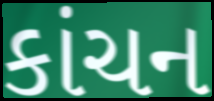
કાંચન